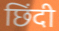
छिंदी